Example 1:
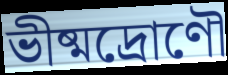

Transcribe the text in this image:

ভীষ্মদ্রোণৌ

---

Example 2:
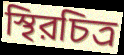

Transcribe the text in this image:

স্থিরচিত্র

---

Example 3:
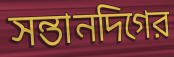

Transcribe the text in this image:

সন্তানদিগের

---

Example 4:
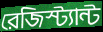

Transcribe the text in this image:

রেজিস্ট্যান্ট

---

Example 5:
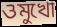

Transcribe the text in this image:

ওমুখো